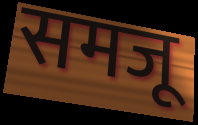
समजू